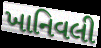
ખાનિવલી